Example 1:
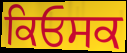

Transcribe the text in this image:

ਕਿਓਸਕ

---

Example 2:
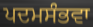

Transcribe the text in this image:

ਪਦਮਸੰਭਵਾ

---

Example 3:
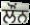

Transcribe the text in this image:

ਲੌਂਨ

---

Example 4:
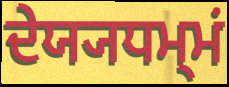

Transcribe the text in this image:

ਦੇਯ੍ਯਧਮ੍ਮਂ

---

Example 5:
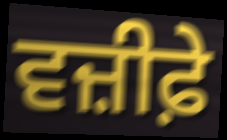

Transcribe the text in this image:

ਵਜ਼ੀਫ਼ੇ